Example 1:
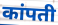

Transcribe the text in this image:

कांपती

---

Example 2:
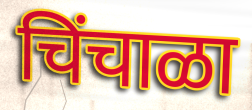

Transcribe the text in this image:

चिंचाळा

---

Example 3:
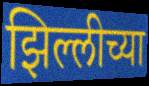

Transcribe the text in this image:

झिल्लीच्या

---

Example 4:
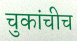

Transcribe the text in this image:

चुकांचीच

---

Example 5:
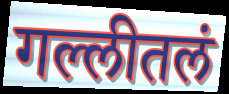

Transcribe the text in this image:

गल्लीतलं